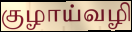
குழாய்வழி